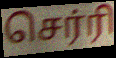
செர்ரி